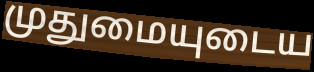
முதுமையுடைய